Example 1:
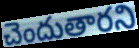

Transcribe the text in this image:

చెందుతారని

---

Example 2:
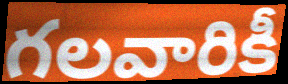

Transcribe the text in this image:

గలవారికీ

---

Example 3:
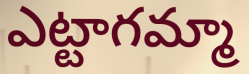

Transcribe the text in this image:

ఎట్టాగమ్మా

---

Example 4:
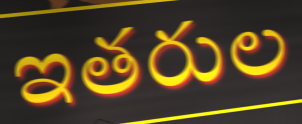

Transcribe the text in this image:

ఇతరుల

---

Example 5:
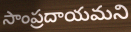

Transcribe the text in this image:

సాంప్రదాయమని